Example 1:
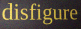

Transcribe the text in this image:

disfigure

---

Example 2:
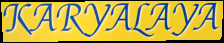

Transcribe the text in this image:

KARYALAYA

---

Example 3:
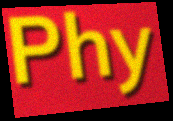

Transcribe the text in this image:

Phy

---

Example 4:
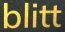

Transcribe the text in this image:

blitt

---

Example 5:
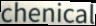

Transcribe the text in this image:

chenical